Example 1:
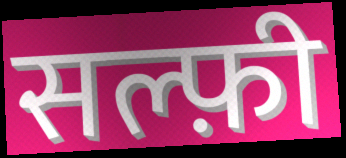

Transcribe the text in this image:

सल्फ़ी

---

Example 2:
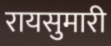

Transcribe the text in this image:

रायसुमारी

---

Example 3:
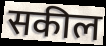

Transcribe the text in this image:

सकील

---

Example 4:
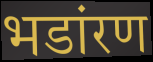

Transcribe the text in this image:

भडांरण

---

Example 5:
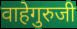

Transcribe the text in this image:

वाहेगुरुजी